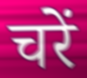
चरें